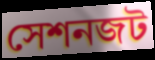
সেশনজট